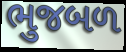
ભુજબળ